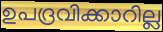
ഉപദ്രവിക്കാറില്ല